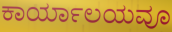
ಕಾರ್ಯಾಲಯವೂ